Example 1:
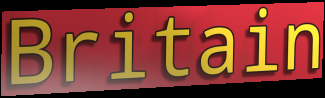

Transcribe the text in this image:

Britain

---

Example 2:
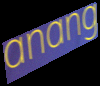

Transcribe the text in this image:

anang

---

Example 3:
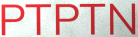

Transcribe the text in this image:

PTPTN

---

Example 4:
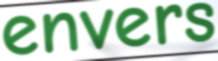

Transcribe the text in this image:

envers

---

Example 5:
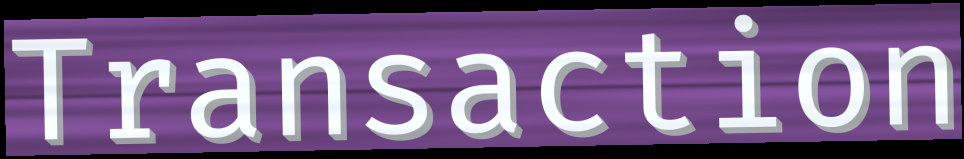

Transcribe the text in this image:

Transaction